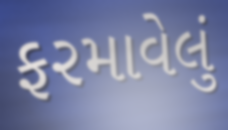
ફરમાવેલું